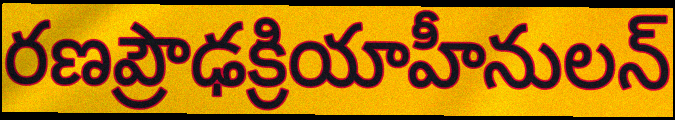
రణప్రౌఢక్రియాహీనులన్